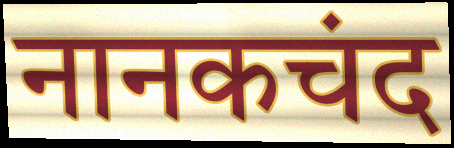
नानकचंद